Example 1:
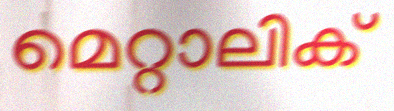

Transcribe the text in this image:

മെറ്റാലിക്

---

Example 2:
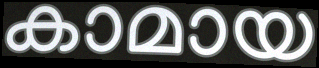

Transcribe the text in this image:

കാമായ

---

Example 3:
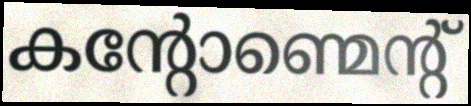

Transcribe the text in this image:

കന്റോണ്മെന്റ്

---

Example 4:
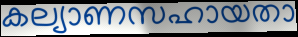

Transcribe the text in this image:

കല്യാണസഹായതാ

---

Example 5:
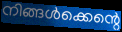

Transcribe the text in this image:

നിങ്ങൾക്കെന്റെ